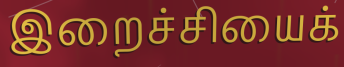
இறைச்சியைக்